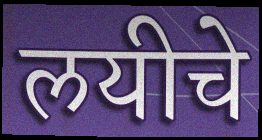
लयीचे